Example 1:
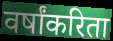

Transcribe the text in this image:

वर्षांकरिता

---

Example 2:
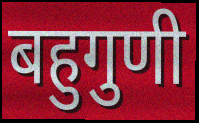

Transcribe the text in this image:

बहुगुणी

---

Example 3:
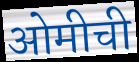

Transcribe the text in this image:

ओमीची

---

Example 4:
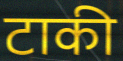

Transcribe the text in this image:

टाकी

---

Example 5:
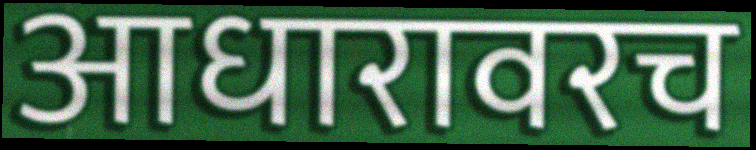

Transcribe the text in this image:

आधारावरच